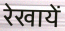
रेखायें